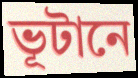
ভূটানে